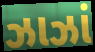
ઝાઝાં